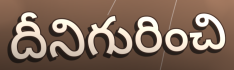
దీనిగురించి